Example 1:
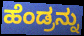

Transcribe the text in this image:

ಹೆಂಡ್ರನ್ನು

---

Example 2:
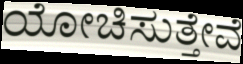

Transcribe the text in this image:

ಯೋಚಿಸುತ್ತೇವೆ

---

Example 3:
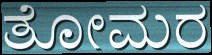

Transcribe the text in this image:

ತೋಮರ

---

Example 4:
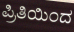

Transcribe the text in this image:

ಪ್ರಿತಿಯಿಂದ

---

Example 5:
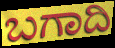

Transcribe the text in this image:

ಬಗಾದಿ